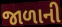
જાળાની